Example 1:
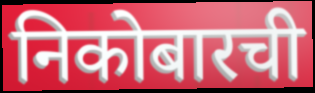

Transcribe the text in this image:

निकोबारची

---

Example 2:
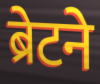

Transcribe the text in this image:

ब्रेटने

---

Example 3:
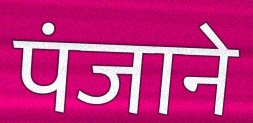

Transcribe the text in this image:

पंजाने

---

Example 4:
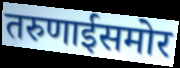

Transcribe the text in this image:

तरुणाईसमोर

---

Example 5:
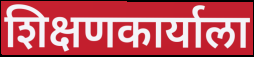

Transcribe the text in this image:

शिक्षणकार्याला